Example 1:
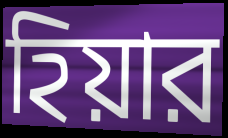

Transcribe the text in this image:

হিয়ার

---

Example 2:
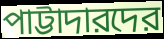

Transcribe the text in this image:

পাট্টাদারদের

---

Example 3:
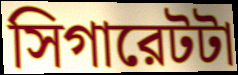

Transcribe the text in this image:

সিগারেটটা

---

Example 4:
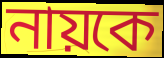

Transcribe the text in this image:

নায়কে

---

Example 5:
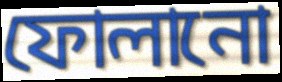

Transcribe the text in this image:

ফোলানো